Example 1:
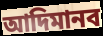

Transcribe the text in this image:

আদিমানব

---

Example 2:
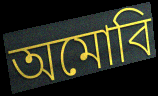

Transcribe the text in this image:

অমোবি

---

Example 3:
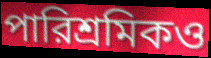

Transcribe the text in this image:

পারিশ্রমিকও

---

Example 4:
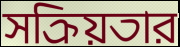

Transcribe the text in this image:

সক্রিয়তার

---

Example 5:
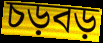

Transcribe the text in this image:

চড়বড়